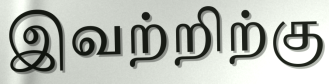
இவற்றிற்கு